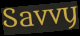
Savvy